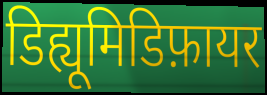
डिह्यूमिडिफ़ायर